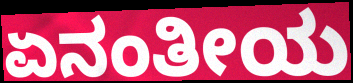
ಏನಂತೀಯ